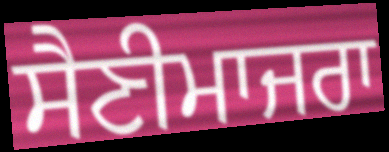
ਸੈਣੀਮਾਜਰਾ